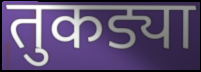
तुकड्या